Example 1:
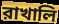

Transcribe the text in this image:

রাখালি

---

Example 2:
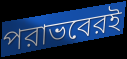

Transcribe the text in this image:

পরাভবেরই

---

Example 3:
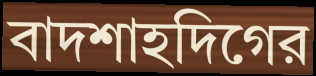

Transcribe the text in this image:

বাদশাহদিগের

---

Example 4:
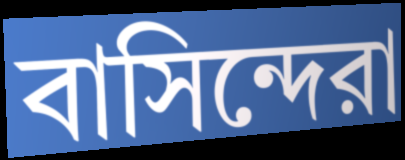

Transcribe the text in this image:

বাসিন্দেরা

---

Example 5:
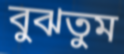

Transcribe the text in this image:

বুঝতুম